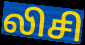
லிசி